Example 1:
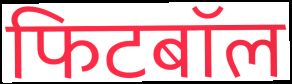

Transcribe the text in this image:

फिटबॉल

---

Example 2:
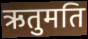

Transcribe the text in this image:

ऋतुमति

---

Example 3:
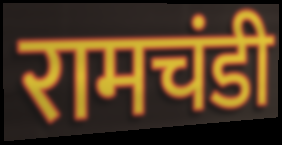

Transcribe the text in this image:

रामचंडी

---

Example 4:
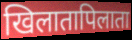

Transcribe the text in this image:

खिलातापिलाता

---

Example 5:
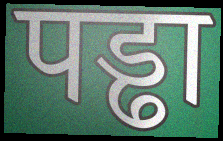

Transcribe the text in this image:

पड्ढा